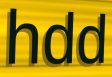
hdd